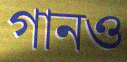
গানও